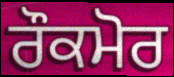
ਰੌਕਮੋਰ